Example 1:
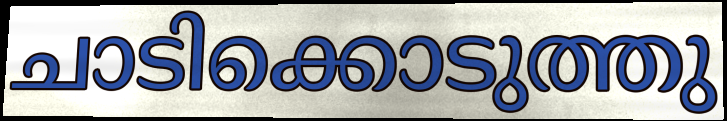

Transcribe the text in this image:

ചാടിക്കൊടുത്തു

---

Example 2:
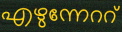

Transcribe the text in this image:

എഴുന്നേററ്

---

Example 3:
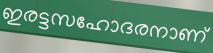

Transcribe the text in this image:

ഇരട്ടസഹോദരനാണ്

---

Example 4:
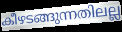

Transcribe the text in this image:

കീഴടങ്ങുന്നതിലല്ല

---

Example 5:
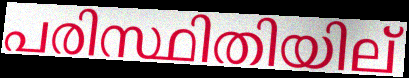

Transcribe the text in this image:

പരിസ്ഥിതിയില്